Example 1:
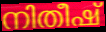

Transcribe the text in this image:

നിതീഷ്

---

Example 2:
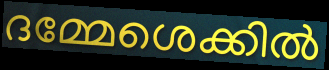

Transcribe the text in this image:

ദമ്മേശെക്കിൽ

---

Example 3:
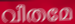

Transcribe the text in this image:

വീതമേ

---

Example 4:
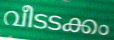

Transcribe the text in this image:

വീടടക്കം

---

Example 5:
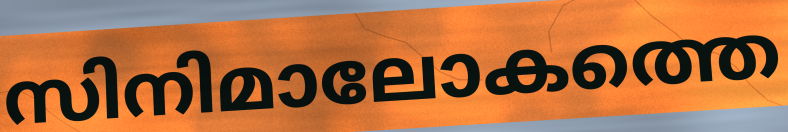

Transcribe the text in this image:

സിനിമാലോകത്തെ